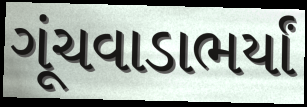
ગૂંચવાડાભર્યાં